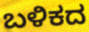
ಬಳಿಕದ